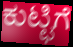
ಕುಟ್ಟಿಗೆ